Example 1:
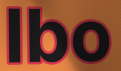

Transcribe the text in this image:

Ibo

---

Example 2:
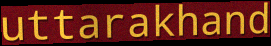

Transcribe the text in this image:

uttarakhand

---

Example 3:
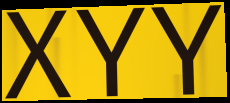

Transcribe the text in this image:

XYY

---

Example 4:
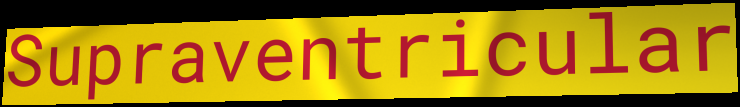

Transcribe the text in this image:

Supraventricular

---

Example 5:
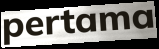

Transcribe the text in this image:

pertama